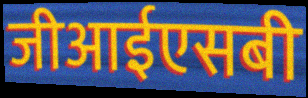
जीआईएसबी